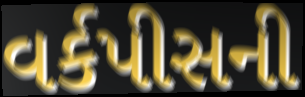
વર્કપીસની